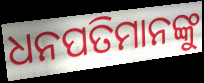
ଧନପତିମାନଙ୍କୁ